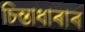
চিন্তাধাৰাৰ